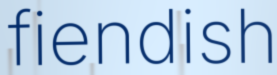
fiendish